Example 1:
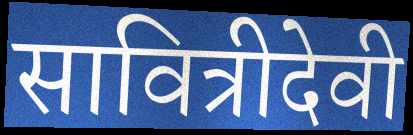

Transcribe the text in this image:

सावित्रीदेवी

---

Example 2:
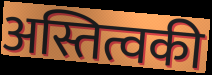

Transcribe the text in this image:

अस्तित्वकी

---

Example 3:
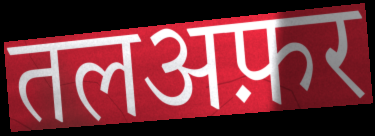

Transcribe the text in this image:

तलअफ़र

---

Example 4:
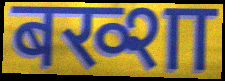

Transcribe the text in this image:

बख्शा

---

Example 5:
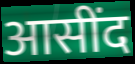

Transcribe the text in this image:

आसींद